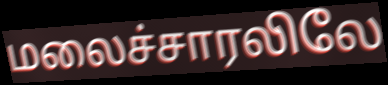
மலைச்சாரலிலே